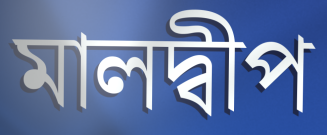
মালদ্বীপ